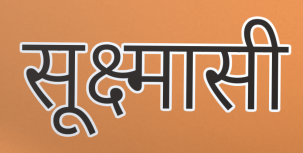
सूक्ष्मासी